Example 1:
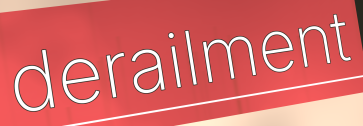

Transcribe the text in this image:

derailment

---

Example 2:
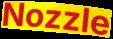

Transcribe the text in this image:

Nozzle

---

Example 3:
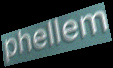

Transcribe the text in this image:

phellem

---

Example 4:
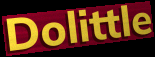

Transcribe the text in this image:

Dolittle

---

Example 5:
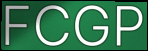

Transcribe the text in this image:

FCGP